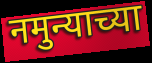
नमुन्याच्या